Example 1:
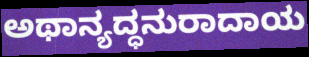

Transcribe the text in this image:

ಅಥಾನ್ಯದ್ಧನುರಾದಾಯ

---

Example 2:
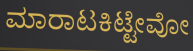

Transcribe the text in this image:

ಮಾರಾಟಕಿಟ್ಟೇವೋ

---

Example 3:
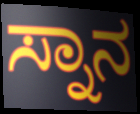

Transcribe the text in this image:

ಸ್ನಾನ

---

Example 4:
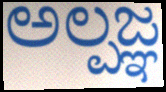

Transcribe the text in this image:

ಅಲ್ಪಜ್ಞ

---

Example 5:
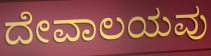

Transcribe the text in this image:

ದೇವಾಲಯವು